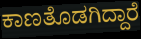
ಕಾಣತೊಡಗಿದ್ದಾರೆ